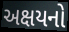
અક્ષયનો